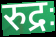
रुद्रः